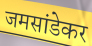
जमसांडेकर